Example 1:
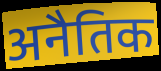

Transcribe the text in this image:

अनैतिक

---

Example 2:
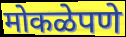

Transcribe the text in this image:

मोकळेपणे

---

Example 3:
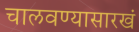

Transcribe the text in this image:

चालवण्यासारखं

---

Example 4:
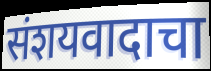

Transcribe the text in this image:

संशयवादाचा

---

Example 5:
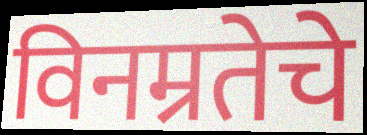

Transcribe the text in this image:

विनम्रतेचे